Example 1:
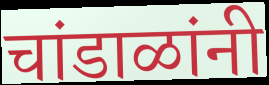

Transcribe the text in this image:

चांडाळांनी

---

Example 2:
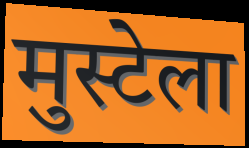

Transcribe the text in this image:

मुस्टेला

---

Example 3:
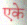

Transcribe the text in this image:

एके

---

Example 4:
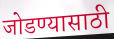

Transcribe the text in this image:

जोडण्यासाठी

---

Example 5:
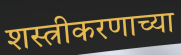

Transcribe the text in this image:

शस्त्रीकरणाच्या